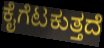
ಕೈಗೆಟಕುತ್ತದೆ